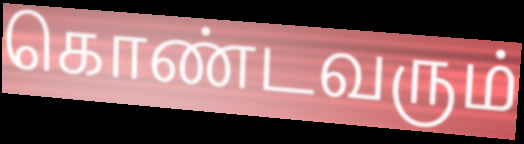
கொண்டவரும்